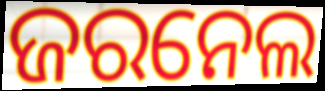
ଜରନେଲ